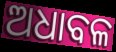
ଅଧାବଳ